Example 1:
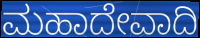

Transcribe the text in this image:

ಮಹಾದೇವಾದಿ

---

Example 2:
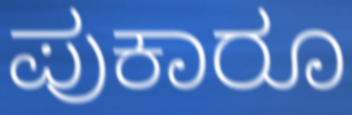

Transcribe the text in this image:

ಪುಕಾರೂ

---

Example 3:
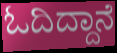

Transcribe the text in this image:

ಓದಿದ್ದಾನೆ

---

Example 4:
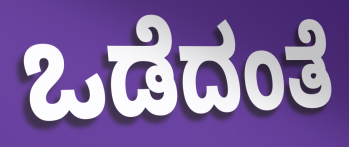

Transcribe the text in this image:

ಒಡೆದಂತೆ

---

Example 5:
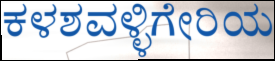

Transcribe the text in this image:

ಕಳಶವಳ್ಳಿಗೇರಿಯ